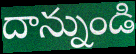
దాన్నుండి